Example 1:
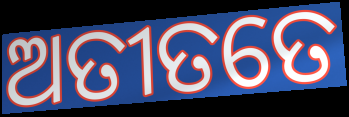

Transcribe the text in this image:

ଅତୀତତେ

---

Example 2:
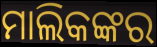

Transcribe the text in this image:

ମାଲିକଙ୍କର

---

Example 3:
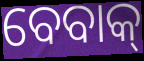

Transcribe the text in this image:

ବେବାକ୍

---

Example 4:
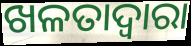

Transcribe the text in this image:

ଖଳତାଦ୍ଵାରା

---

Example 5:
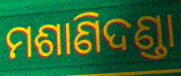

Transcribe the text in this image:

ମଶାଣିଦଣ୍ଡା